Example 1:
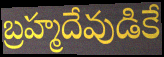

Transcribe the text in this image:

బ్రహ్మదేవుడికే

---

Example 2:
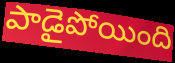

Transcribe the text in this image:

పాడైపోయింది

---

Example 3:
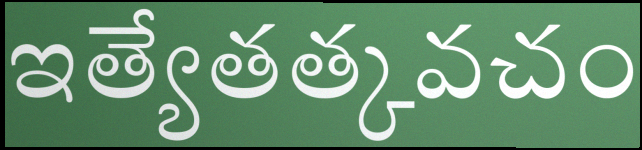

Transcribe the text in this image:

ఇత్యేతత్కవచం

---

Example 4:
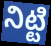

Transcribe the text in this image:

నిట్టి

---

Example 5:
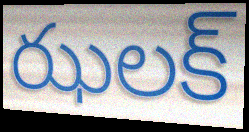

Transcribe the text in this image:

ఝలక్